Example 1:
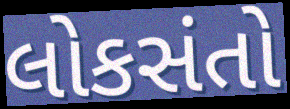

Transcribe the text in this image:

લોકસંતો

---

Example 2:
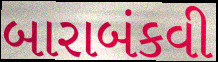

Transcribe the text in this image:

બારાબંકવી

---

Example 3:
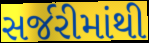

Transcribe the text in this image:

સર્જરીમાંથી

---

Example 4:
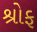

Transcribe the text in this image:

શ્રોફ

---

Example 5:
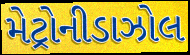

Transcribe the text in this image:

મેટ્રોનીડાઝોલ